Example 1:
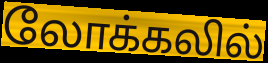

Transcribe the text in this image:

லோக்கலில்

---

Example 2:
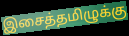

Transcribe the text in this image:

இசைத்தமிழுக்கு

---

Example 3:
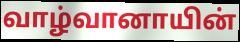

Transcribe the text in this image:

வாழ்வானாயின்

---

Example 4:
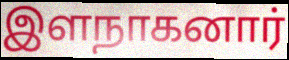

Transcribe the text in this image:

இளநாகனார்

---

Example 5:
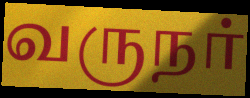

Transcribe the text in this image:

வருநர்